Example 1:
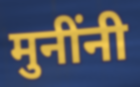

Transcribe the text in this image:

मुनींनी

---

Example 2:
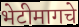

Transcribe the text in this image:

भेटीमागचे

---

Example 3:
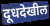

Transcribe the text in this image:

दूधदेखील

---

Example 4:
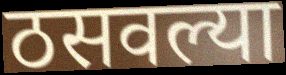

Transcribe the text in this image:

ठसवल्या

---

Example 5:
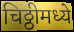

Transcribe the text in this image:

चिठ्ठीमध्ये